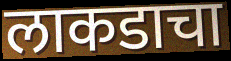
लाकडाचा